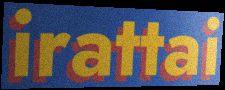
irattai